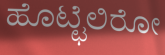
ಹೊಟ್ಟೆಲಿರೋ